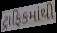
ટ્રાફિકમાંથી